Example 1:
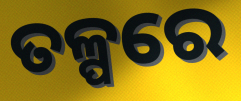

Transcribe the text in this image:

ତଳ୍ପରେ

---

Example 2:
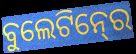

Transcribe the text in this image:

ବୁଲେଟିନ୍‍ରେ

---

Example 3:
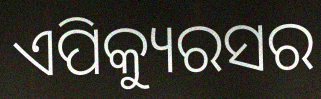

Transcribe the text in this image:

ଏପିକ୍ୟୁରସର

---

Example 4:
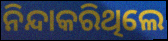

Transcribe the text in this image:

ନିନ୍ଦାକରିଥିଲେ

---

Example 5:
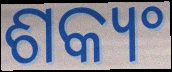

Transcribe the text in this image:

ଶକ୍ୟଂ